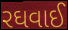
રઘવાઈ